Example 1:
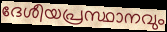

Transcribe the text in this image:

ദേശീയപ്രസ്ഥാനവും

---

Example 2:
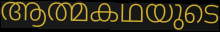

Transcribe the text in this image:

ആത്മകഥയുടെ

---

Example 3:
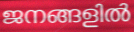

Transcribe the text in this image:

ജനങ്ങളിൽ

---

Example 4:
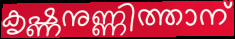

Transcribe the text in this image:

കൃഷ്ണനുണ്ണിത്താന്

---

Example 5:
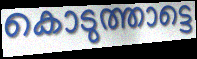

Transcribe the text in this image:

കൊടുത്താട്ടെ